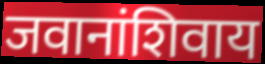
जवानांशिवाय